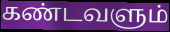
கண்டவளும்